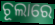
ଚୂଲାରେ